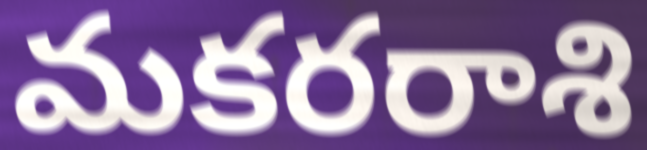
మకరరాశి